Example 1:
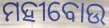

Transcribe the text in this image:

ମହୀବୋଉ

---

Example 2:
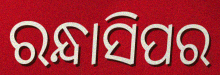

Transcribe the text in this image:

ରନ୍ଧାସିପର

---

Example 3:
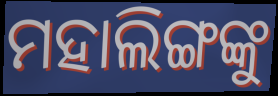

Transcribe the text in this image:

ମହାଲିଙ୍ଗଙ୍କୁ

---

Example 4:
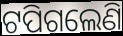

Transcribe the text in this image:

ଟପିଗଲେଣି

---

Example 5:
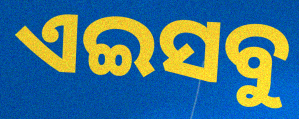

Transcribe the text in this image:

ଏଇସବୁ